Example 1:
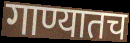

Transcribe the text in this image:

गाण्यातच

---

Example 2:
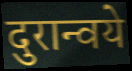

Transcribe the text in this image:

दुरान्वये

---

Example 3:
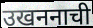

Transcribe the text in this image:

उखननाची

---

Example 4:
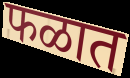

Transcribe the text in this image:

फळात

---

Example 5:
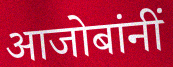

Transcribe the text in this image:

आजोबांनीं